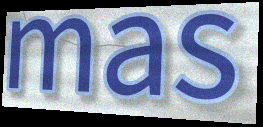
mas